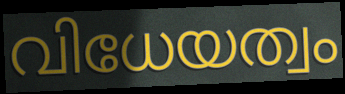
വിധേയത്വം